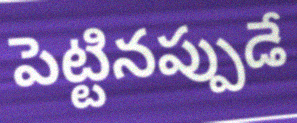
పెట్టినప్పుడే